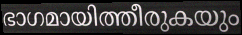
ഭാഗമായിത്തീരുകയും